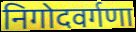
निगोदवर्गणा